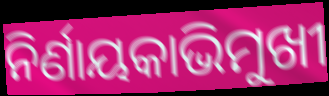
ନିର୍ଣାୟକାଭିମୁଖୀ